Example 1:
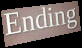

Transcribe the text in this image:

Ending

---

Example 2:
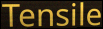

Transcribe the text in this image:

Tensile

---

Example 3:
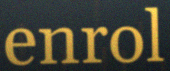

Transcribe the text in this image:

enrol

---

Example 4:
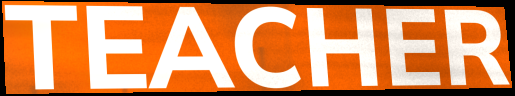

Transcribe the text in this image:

TEACHER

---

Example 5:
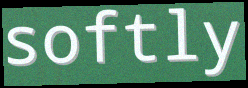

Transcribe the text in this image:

softly